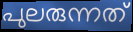
പുലരുന്നത്